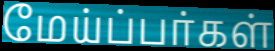
மேய்ப்பர்கள்